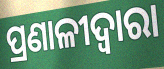
ପ୍ରଣାଳୀଦ୍ୱାରା